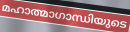
മഹാത്മാഗാന്ധിയുടെ